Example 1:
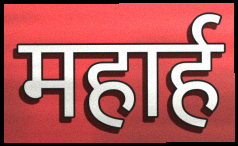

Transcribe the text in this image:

महार्ह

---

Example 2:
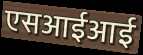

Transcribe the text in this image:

एसआईआई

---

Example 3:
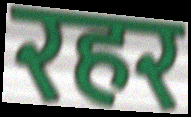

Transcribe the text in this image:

रहर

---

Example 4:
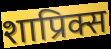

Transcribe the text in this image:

शाप्रिक्स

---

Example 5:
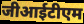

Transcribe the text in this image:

जीआईटीएम